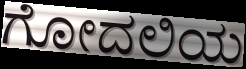
ಗೋದಲಿಯ